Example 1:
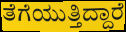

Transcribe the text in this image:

ತೆಗೆಯುತ್ತಿದ್ದಾರೆ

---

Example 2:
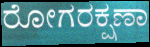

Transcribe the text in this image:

ರೋಗರಕ್ಷಣಾ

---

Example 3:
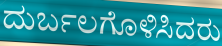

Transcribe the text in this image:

ದುರ್ಬಲಗೊಳಿಸಿದರು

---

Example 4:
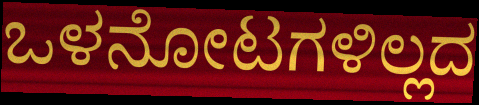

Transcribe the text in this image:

ಒಳನೋಟಗಳಿಲ್ಲದ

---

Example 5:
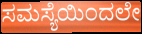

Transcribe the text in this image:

ಸಮಸ್ಯೆಯಿಂದಲೇ